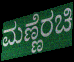
ಮಣ್ಣೆರಚಿ